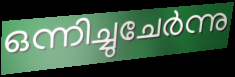
ഒന്നിച്ചുചേർന്നു